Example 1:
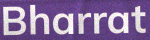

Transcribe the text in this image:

Bharrat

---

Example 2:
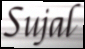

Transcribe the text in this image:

Sujal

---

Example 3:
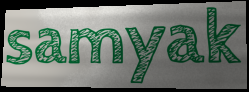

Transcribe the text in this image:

samyak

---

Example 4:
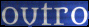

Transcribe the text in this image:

outro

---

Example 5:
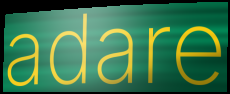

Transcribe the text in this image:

adare